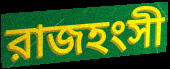
রাজহংসী